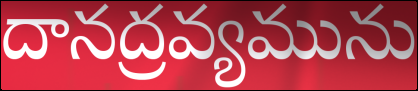
దానద్రవ్యమును